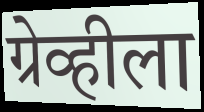
ग्रेव्हीला